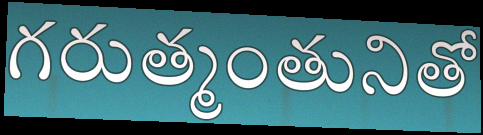
గరుత్మంతునితో